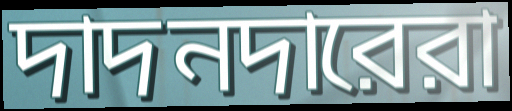
দাদনদারেরা